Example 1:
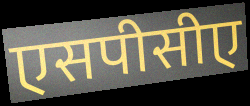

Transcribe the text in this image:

एसपीसीए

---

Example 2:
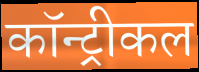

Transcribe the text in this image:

कॉन्ट्रीकल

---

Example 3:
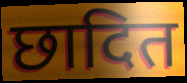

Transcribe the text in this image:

छादित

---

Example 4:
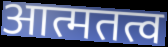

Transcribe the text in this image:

आत्मतत्व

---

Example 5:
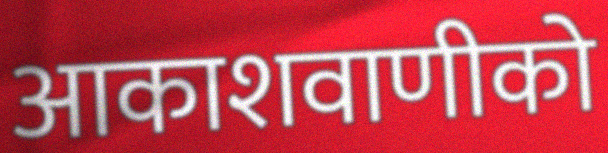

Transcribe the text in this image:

आकाशवाणीको